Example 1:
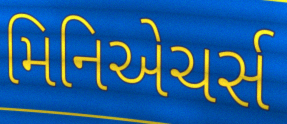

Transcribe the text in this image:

મિનિએચર્સ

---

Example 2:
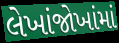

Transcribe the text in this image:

લેખાંજોખાંમાં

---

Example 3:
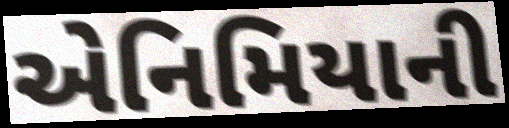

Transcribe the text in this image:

એનિમિયાની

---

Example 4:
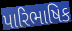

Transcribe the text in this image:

પારિભાષિક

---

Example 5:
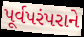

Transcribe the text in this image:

પૂર્વપરંપરાને